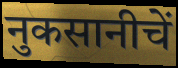
नुकसानीचें